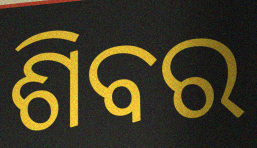
ଶିବର